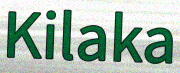
Kilaka